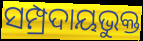
ସମ୍ପ୍ରଦାୟଭୁକ୍ତ